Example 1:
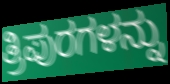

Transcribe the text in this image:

ತ್ರಿಪುರಗಳನ್ನು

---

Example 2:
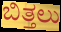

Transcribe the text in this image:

ಬಿತ್ತಲು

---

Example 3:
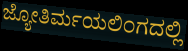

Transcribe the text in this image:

ಜ್ಯೋತಿರ್ಮಯಲಿಂಗದಲ್ಲಿ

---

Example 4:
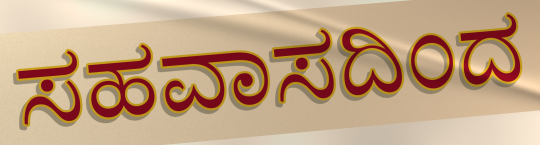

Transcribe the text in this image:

ಸಹವಾಸದಿಂದ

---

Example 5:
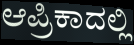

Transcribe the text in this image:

ಆಪ್ರಿಕಾದಲ್ಲಿ